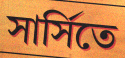
সার্সিতে